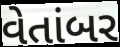
વેતાંબર